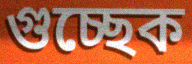
গুচ্ছেক